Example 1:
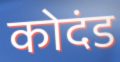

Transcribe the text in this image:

कोदंड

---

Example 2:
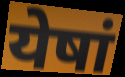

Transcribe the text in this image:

येषां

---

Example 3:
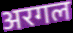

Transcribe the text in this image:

अरगल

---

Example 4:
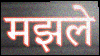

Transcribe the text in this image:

मझले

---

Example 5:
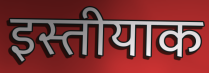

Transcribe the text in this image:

इस्तीयाक